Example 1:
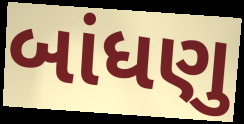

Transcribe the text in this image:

બાંધણુ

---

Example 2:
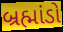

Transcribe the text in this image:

બ્રહ્માંડો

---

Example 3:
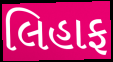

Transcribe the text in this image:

લિહાફ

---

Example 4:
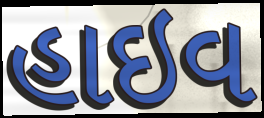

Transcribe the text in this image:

હાઇવ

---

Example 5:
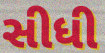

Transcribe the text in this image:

સીધી